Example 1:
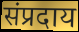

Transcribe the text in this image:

संप्रदाय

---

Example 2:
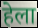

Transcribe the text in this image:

हेला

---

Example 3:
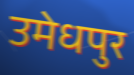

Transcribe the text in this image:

उमेधपुर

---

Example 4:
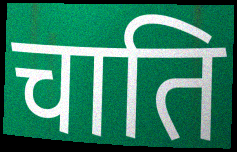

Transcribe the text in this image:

चाति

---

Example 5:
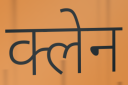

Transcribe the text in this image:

क्लेन